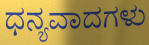
ಧನ್ಯವಾದಗಳು